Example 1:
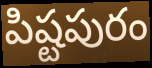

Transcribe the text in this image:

పిష్టపురం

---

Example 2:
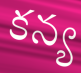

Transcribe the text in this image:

కన్య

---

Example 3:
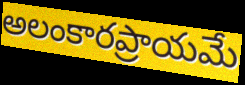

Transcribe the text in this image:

అలంకారప్రాయమే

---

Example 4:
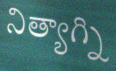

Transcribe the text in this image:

నిత్యాగ్ని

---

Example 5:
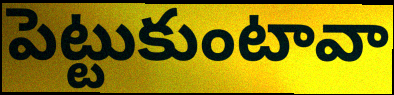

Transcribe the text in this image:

పెట్టుకుంటావా